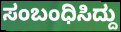
ಸಂಬಂಧಿಸಿದ್ದು